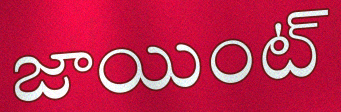
జాయింట్